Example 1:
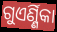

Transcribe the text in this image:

ଗୁଏର୍ଣ୍ଣିକା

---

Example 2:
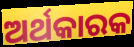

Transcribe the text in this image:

ଅର୍ଥକାରକ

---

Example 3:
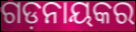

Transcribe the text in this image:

ଗଡ଼ନାୟକର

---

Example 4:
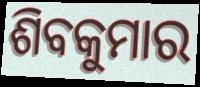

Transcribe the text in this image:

ଶିବକୁମାର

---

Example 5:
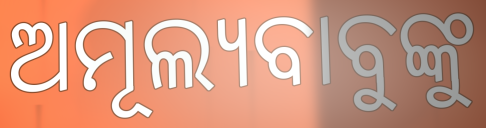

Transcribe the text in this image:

ଅମୂଲ୍ୟବାବୁଙ୍କୁ